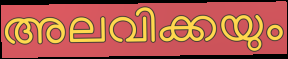
അലവിക്കയും